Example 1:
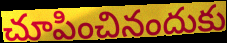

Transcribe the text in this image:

చూపించినందుకు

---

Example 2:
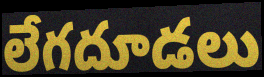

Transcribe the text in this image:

లేగదూడలు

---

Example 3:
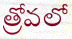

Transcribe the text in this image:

త్రోవలో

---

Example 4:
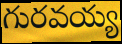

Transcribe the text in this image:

గురవయ్య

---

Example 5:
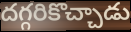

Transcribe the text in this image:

దగ్గరికొచ్చాడు